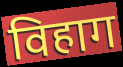
विहाग